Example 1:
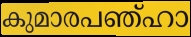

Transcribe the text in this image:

കുമാരപഞ്ഹാ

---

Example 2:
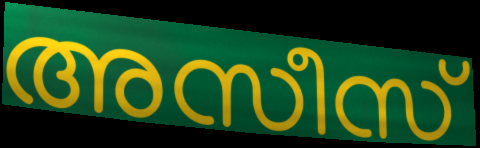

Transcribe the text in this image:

അസീസ്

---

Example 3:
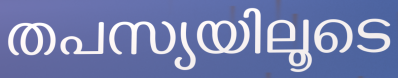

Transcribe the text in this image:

തപസ്യയിലൂടെ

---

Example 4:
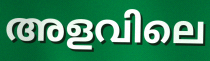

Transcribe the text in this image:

അളവിലെ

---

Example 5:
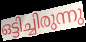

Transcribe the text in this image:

ഒട്ടിച്ചിരുന്നു